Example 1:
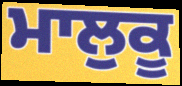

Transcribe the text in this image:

ਮਾਲੁਕੂ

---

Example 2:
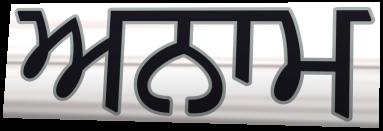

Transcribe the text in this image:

ਅਨਾਮ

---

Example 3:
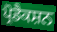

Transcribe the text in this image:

ਪ੍ਰੋਡੈਕਸ਼ਨ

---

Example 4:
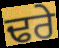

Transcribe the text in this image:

ਢਰੇ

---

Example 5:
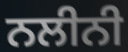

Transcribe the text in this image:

ਨਲੀਨੀ